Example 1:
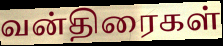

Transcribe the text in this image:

வன்திரைகள்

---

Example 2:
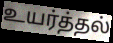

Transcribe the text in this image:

உயர்த்தல்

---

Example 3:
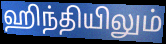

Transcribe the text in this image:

ஹிந்தியிலும்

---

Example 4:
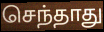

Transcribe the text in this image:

செந்தாது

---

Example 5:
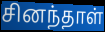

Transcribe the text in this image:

சினந்தாள்